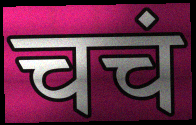
चचं